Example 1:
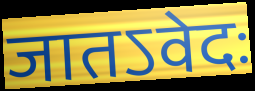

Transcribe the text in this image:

जातऽवेदः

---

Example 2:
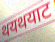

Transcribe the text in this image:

थयथयाट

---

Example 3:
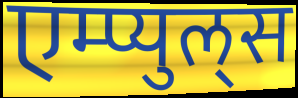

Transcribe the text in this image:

एम्प्युल्स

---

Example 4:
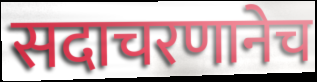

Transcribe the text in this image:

सदाचरणानेच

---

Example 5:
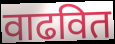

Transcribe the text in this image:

वाढवित